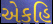
એકહિ